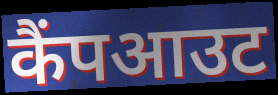
कैंपआउट